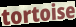
tortoise